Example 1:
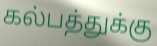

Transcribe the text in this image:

கல்பத்துக்கு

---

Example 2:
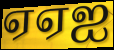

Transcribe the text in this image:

ஏஏஐ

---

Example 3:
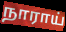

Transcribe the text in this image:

நாராய்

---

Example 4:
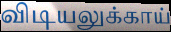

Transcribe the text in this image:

விடியலுக்காய்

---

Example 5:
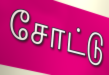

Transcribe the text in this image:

சோட்டு